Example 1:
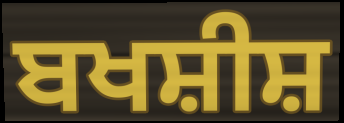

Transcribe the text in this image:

ਬਖਸ਼ੀਸ਼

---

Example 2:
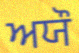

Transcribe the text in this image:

ਅਯੌ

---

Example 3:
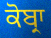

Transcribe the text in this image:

ਕੋਬ੍ਰਾ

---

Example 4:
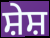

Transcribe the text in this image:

ਸ਼ੇਸ਼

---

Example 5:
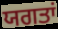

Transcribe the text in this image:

ਯਗਤਾਂ